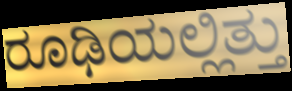
ರೂಢಿಯಲ್ಲಿತ್ತು